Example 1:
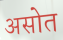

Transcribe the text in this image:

असोत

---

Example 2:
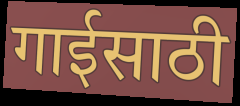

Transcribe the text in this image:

गाईसाठी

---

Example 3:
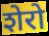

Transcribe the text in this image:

शेरो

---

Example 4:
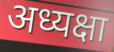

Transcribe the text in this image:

अध्यक्षा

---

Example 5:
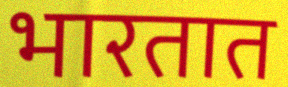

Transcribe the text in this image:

भारतात